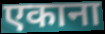
एकाना